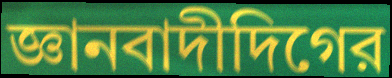
জ্ঞানবাদীদিগের